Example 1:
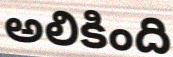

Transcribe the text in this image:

అలికింది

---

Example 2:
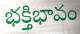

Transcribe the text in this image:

భక్తిభావం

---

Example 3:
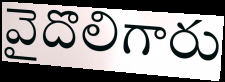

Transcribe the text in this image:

వైదొలిగారు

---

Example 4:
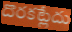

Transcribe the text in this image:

దొరకట్లేదు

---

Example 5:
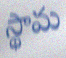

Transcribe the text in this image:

స్థామ